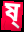
ষ্